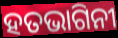
ହତଭାଗିନୀ